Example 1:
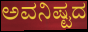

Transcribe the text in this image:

ಅವನಿಷ್ಟದ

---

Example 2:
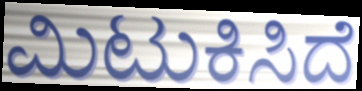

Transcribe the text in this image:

ಮಿಟುಕಿಸಿದೆ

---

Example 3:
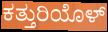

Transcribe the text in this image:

ಕತ್ತುರಿಯೊಳ್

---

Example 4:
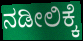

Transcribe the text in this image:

ನಡೀಲಿಕ್ಕೆ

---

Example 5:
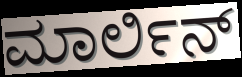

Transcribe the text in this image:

ಮಾರ್ಲಿನ್